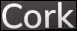
Cork